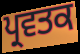
ਪ੍ਰਵਤਕ